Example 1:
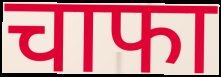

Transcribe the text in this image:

चाफा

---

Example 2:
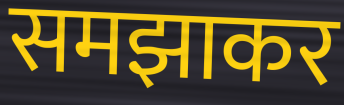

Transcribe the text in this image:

समझाकर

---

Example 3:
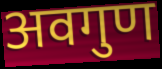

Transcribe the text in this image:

अवगुण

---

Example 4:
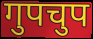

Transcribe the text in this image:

गुपचुप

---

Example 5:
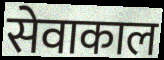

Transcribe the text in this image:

सेवाकाल